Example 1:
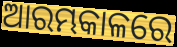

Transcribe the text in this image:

ଆରମ୍ଭକାଳରେ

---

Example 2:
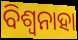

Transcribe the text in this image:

ବିଶ୍ଵନାହା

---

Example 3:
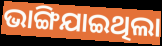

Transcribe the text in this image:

ଭାଙ୍ଗିଯାଇଥିଲା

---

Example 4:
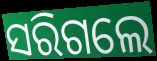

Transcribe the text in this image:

ସରିଗଲେ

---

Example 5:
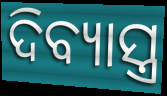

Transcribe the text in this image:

ଦିବ୍ୟାସ୍ତ୍ର